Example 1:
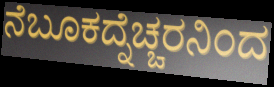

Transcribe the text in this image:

ನೆಬೂಕದ್ನೆಚ್ಚರನಿಂದ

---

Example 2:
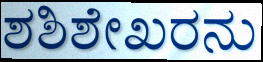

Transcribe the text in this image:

ಶಶಿಶೇಖರನು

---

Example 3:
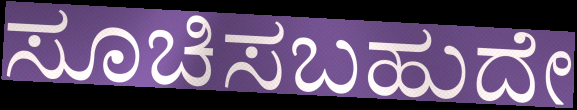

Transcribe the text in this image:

ಸೂಚಿಸಬಹುದೇ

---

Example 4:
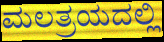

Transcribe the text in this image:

ಮಲತ್ರಯದಲ್ಲಿ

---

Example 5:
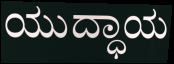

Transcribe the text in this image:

ಯುದ್ಧಾಯ